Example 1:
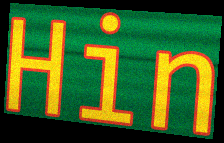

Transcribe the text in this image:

Hin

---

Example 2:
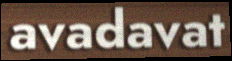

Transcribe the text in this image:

avadavat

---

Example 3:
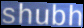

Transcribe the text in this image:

shubh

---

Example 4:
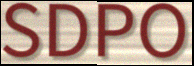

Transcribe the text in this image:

SDPO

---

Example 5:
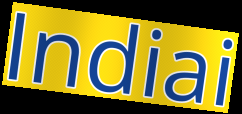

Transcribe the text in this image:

Indiai